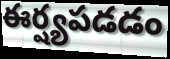
ఈర్ష్యపడడం